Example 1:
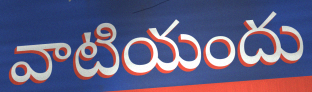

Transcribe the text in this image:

వాటియందు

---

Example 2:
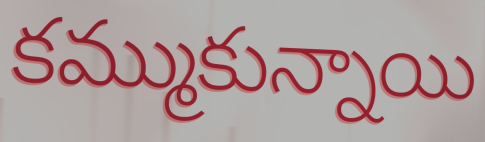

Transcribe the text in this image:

కమ్ముకున్నాయి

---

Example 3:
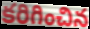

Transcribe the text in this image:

కరిగించిన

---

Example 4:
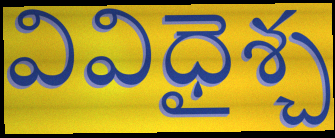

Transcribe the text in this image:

వివిధైశ్చ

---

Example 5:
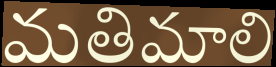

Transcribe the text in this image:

మతిమాలి